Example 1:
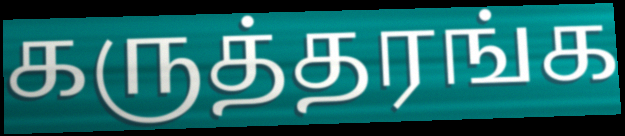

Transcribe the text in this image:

கருத்தரங்க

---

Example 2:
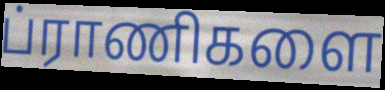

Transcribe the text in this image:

ப்ராணிகளை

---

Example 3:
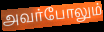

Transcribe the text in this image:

அவர்போலும்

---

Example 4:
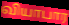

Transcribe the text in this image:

வியாபார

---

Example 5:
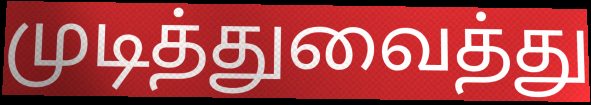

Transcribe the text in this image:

முடித்துவைத்து